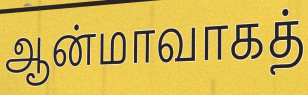
ஆன்மாவாகத்